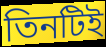
তিনটিই